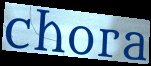
chora